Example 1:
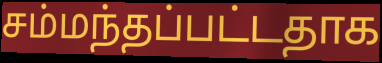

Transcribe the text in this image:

சம்மந்தப்பட்டதாக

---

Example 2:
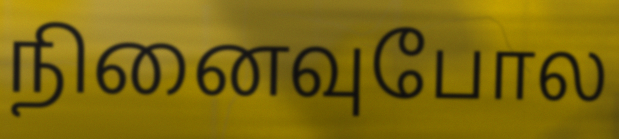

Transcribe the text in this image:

நினைவுபோல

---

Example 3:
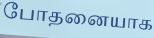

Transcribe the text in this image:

போதனையாக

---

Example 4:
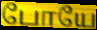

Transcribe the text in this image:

போயே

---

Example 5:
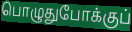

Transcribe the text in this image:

பொழுதுபோக்குப்